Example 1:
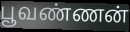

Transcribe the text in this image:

பூவண்ணன்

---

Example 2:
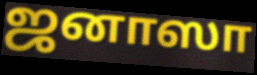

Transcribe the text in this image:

ஜனாஸா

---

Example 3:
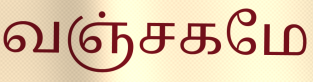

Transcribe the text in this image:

வஞ்சகமே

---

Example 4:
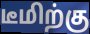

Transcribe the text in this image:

டீமிற்கு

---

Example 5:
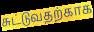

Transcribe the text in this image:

சுட்டுவதற்காக